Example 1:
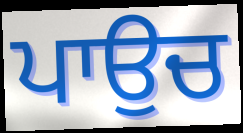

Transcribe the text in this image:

ਪਾਉਚ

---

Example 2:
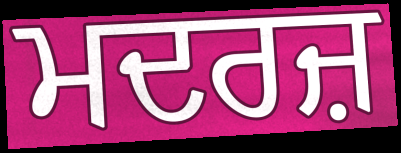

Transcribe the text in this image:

ਮਦਰਜ਼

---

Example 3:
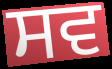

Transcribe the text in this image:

ਸਵ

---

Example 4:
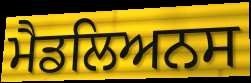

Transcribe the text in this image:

ਮੈਡਲਿਅਨਸ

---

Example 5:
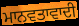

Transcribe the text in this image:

ਮਾਨਵਤਾਵਾਦੀ